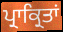
ਪ੍ਰਾਕ੍ਰਿਤਾਂ